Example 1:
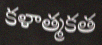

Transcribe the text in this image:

కళాత్మకత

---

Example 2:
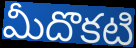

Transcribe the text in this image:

మీదొకటి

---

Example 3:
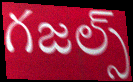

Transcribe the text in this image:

గజల్స్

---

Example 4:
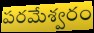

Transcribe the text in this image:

పరమేశ్వరం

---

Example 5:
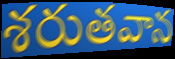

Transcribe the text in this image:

శరుతవాన